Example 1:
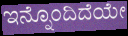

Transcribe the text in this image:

ಇನ್ನೊಂದಿದೆಯೇ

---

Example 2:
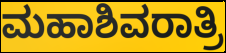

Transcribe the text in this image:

ಮಹಾಶಿವರಾತ್ರಿ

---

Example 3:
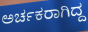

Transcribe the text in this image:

ಅರ್ಚಕರಾಗಿದ್ದ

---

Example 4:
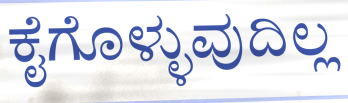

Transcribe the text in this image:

ಕೈಗೊಳ್ಳುವುದಿಲ್ಲ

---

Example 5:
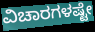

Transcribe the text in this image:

ವಿಚಾರಗಳಷ್ಟೇ